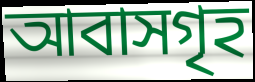
আবাসগৃহ